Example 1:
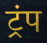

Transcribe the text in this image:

ट्रंप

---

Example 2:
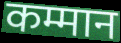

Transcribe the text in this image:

कम्मान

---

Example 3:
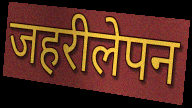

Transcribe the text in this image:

जहरीलेपन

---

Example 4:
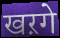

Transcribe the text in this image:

खऱगे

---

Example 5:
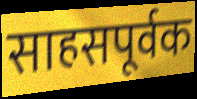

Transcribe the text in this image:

साहसपूर्वक